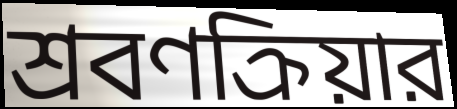
শ্রবণক্রিয়ার